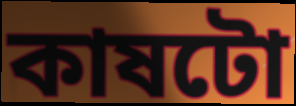
কাষটো